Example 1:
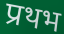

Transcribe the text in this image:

प्रथभ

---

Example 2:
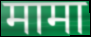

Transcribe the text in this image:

मामा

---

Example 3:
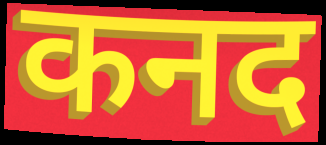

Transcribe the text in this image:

कनद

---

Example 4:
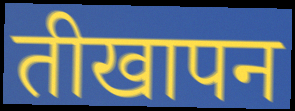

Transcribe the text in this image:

तीखापन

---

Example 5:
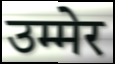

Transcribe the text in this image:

उम्मेर